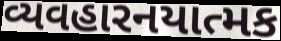
વ્યવહારનયાત્મક